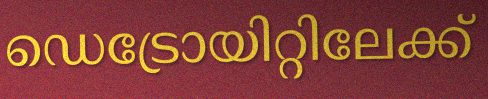
ഡെട്രോയിറ്റിലേക്ക്